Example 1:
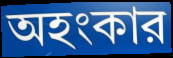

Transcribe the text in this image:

অহংকার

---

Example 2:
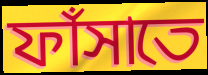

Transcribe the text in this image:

ফাঁসাতে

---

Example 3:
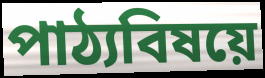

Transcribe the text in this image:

পাঠ্যবিষয়ে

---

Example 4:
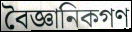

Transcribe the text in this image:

বৈজ্ঞানিকগণ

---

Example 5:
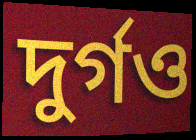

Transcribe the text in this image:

দুর্গও